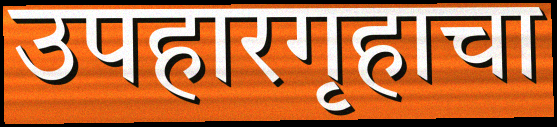
उपहारगृहाचा